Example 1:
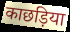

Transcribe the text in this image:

काछड़िया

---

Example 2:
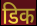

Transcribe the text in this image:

डिक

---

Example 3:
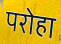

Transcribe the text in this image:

परोहा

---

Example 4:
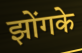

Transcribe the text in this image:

झोंगके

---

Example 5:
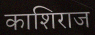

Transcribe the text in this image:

काशिराज